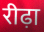
रीढ़ा